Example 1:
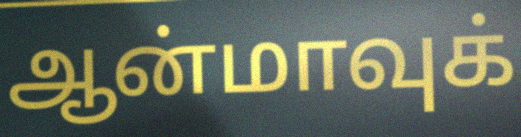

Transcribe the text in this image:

ஆன்மாவுக்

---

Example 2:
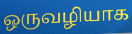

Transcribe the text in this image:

ஒருவழியாக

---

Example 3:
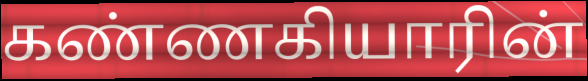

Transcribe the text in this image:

கண்ணகியாரின்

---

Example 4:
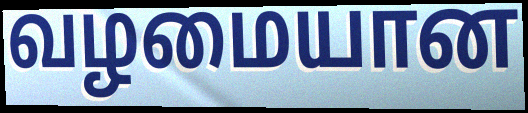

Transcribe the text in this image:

வழமையான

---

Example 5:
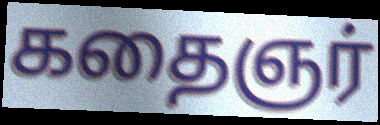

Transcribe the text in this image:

கதைஞர்